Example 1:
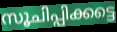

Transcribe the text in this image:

സൂചിപ്പിക്കട്ടെ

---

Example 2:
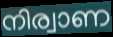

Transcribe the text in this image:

നിര്വാണ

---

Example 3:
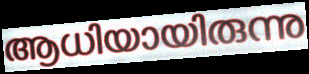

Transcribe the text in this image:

ആധിയായിരുന്നു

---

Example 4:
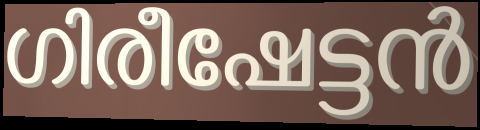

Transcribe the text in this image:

ഗിരീഷേട്ടൻ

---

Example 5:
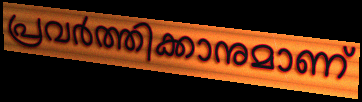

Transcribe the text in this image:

പ്രവർത്തിക്കാനുമാണ്